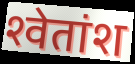
श्वेतांश